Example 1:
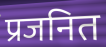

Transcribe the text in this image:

प्रजनित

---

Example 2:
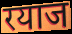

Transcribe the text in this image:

रयाज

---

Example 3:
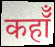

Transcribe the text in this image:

कहॉँ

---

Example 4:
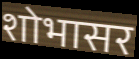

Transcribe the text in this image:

शोभासर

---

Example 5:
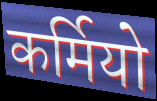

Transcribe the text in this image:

कर्मियो